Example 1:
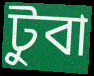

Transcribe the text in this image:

টুবা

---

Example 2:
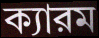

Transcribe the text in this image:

ক্যারম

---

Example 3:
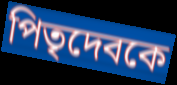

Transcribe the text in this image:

পিতৃদেবকে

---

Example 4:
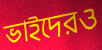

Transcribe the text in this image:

ভাইদেরও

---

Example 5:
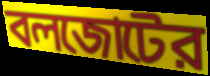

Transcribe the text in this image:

বলজোটের